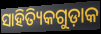
ସାହିତ୍ୟିକଗୁଡ଼ାକ